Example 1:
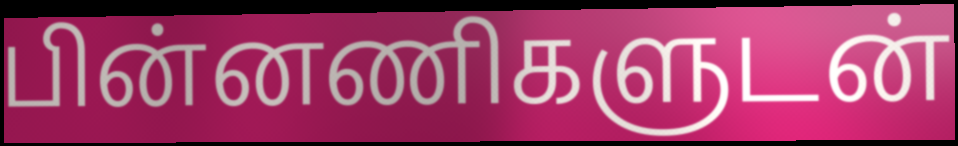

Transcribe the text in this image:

பின்னணிகளுடன்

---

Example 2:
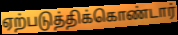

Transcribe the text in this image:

ஏற்படுத்திக்கொண்டார்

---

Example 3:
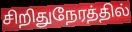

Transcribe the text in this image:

சிறிதுநேரத்தில்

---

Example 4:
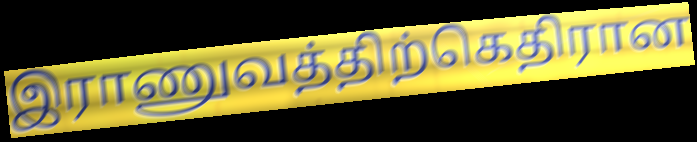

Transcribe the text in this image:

இராணுவத்திற்கெதிரான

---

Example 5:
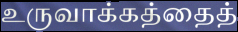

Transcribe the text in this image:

உருவாக்கத்தைத்